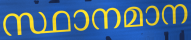
സ്ഥാനമാന